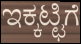
ಇಕ್ಕಟ್ಟಿಗೆ